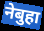
नेबुहा